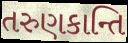
તરુણકાન્તિ